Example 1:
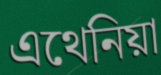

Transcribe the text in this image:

এথেনিয়া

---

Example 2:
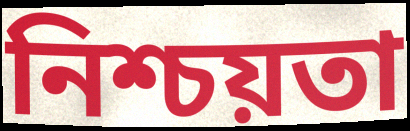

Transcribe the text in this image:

নিশ্চয়তা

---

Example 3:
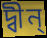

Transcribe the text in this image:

দ্বীন্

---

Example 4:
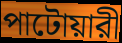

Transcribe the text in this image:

পাটোয়ারী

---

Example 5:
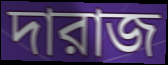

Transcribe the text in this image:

দারাজ